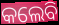
କଲେବି